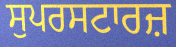
ਸੁਪਰਸਟਾਰਜ਼